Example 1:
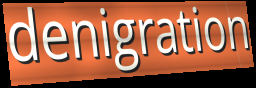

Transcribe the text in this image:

denigration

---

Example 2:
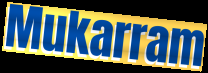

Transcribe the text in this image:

Mukarram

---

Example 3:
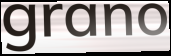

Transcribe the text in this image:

grano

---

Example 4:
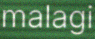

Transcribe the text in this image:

malagi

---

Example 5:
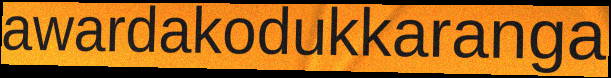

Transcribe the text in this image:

awardakodukkaranga